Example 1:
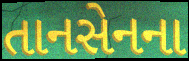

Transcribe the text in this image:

તાનસેનના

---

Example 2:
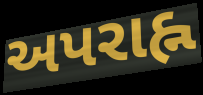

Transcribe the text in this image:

અપરાહ્ન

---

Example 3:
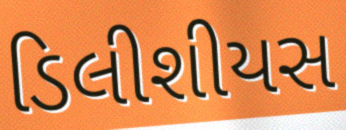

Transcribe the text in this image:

ડિલીશીયસ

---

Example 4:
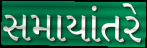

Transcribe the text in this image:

સમાયાંતરે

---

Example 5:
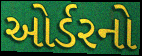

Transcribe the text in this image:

ઓર્ડરનો